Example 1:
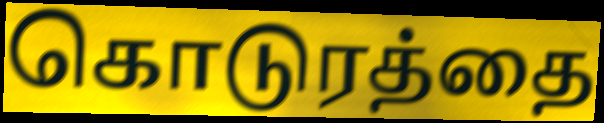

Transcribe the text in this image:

கொடுரத்தை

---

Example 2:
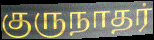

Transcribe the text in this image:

குருநாதர்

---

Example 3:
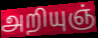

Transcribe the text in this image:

அறியுஞ்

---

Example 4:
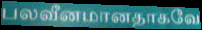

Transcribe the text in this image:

பலவீனமானதாகவே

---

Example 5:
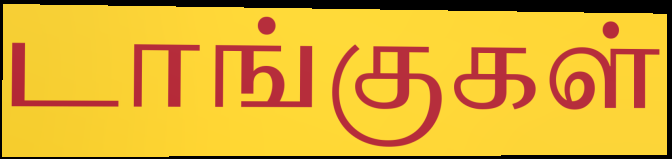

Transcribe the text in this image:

டாங்குகள்